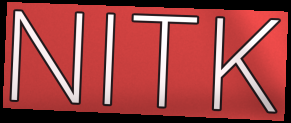
NITK